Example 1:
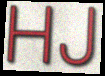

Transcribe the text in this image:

HJ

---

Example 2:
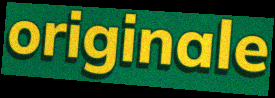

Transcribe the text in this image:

originale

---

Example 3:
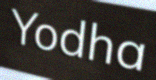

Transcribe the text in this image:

Yodha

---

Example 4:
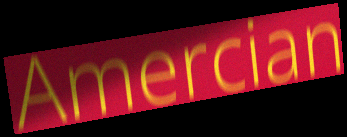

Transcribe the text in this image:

Amercian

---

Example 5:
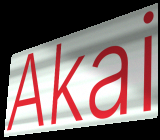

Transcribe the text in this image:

Akai